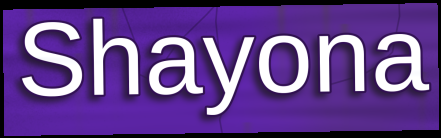
Shayona